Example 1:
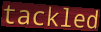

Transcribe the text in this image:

tackled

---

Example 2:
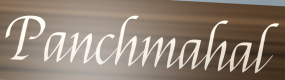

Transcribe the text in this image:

Panchmahal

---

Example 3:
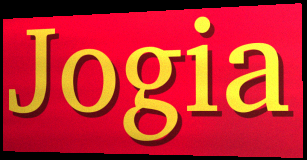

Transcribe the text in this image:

Jogia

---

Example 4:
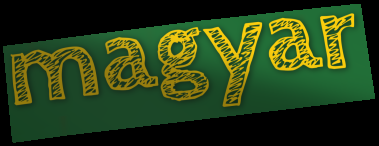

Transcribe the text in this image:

magyar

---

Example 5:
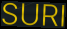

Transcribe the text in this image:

SURI